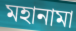
মহানামা